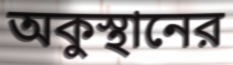
অকুস্থানের